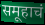
समूहाचं